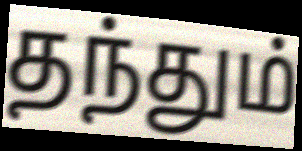
தந்தும்